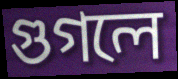
গুগলে